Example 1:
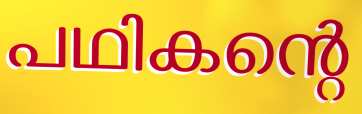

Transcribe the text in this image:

പഥികന്റെ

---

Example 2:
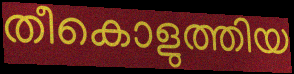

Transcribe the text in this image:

തീകൊളുത്തിയ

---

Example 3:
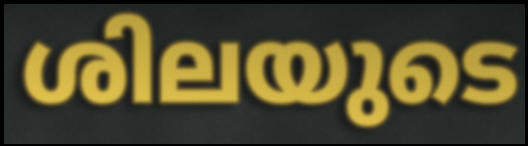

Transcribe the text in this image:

ശിലയുടെ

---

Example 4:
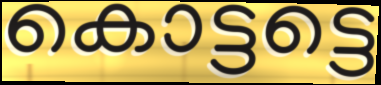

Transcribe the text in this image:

കൊട്ടട്ടെ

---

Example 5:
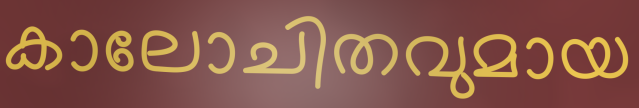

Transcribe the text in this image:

കാലോചിതവുമായ